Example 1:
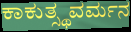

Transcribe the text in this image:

ಕಾಕುತ್ಸ್ಥವರ್ಮನ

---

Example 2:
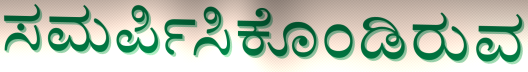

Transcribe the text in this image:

ಸಮರ್ಪಿಸಿಕೊಂಡಿರುವ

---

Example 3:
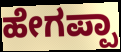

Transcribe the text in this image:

ಹೇಗಪ್ಪಾ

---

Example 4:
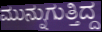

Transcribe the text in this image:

ಮುನ್ನುಗುತ್ತಿದ್ದ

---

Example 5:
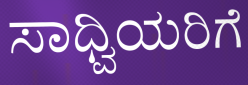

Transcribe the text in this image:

ಸಾಧ್ವಿಯರಿಗೆ